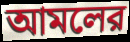
আমলের